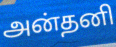
அன்தனி